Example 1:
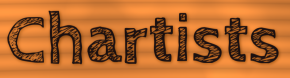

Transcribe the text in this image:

Chartists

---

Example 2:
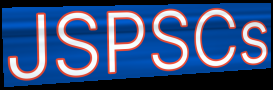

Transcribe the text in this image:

JSPSCs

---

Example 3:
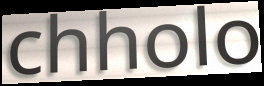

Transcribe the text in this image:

chholo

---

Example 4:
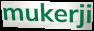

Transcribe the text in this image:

mukerji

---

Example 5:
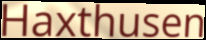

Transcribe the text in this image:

Haxthusen